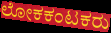
ಲೋಕಕಂಟಕರು